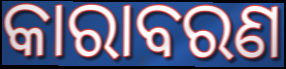
କାରାବରଣ